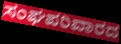
ಸಂಘಪರಿವಾರದ